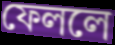
ফেললে